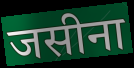
जसीना